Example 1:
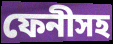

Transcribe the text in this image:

ফেনীসহ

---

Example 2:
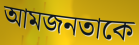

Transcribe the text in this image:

আমজনতাকে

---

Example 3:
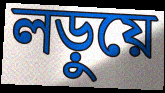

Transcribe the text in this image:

লড়ুয়ে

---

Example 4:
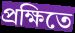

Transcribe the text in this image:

প্রক্ষিতে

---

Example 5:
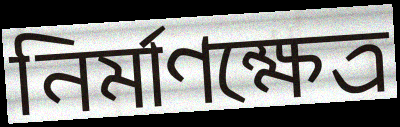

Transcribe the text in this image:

নির্মাণক্ষেত্র